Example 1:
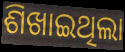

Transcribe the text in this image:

ଶିଖାଇଥିଲା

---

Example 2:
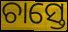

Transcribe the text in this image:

ଚାସ୍ତେ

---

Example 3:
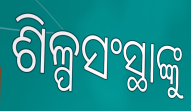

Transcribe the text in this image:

ଶିଳ୍ପସଂସ୍ଥାଙ୍କୁ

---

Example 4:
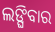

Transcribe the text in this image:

ଲଙ୍ଘିବାର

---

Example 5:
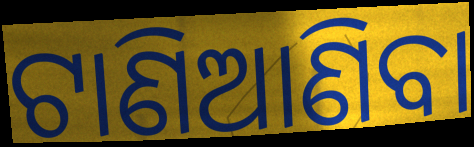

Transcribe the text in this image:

ଟାଣିଆଣିବା